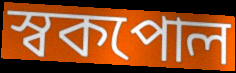
স্বকপোল